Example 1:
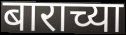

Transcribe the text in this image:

बाराच्या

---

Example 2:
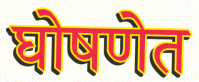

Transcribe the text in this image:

घोषणेत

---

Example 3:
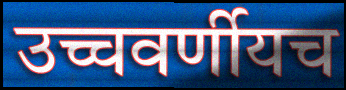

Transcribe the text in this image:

उच्चवर्णीयच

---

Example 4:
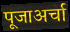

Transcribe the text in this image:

पूजाअर्चा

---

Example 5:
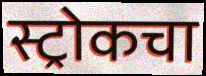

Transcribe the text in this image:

स्ट्रोकचा